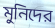
মুনিদের